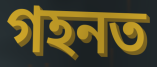
গহনত